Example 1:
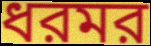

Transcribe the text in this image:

ধরমর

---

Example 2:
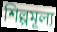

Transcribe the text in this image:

শিল্পমূল্য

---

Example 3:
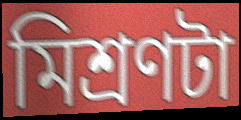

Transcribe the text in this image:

মিশ্রণটা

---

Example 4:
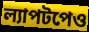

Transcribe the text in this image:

ল্যাপটপেও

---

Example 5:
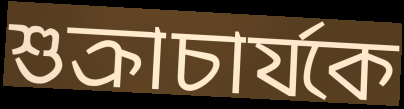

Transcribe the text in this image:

শুক্রাচার্যকে